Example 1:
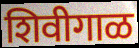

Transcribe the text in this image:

शिवीगाळ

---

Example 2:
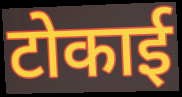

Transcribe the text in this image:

टोकाई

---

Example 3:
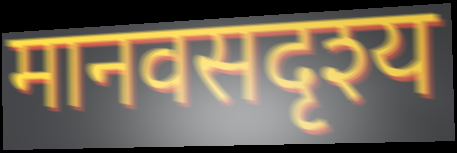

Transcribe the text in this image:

मानवसदृश्य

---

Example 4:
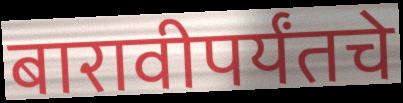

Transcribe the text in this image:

बारावीपर्यंतचे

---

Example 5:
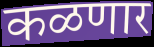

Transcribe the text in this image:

कळणार